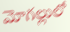
మోగల్లులో